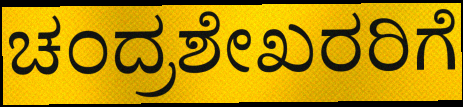
ಚಂದ್ರಶೇಖರರಿಗೆ